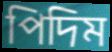
পিদিম